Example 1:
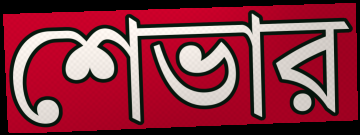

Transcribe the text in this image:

শেভার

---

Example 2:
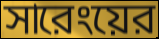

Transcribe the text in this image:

সারেংয়ের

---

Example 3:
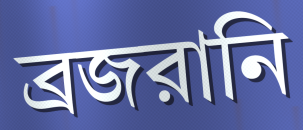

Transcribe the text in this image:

ব্রজরানি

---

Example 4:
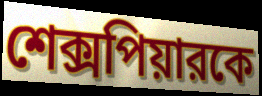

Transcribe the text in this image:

শেক্সপিয়ারকে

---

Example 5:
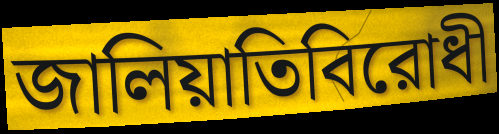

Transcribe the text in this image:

জালিয়াতিবিরোধী